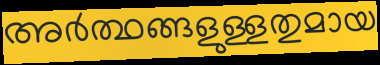
അർത്ഥങ്ങളുള്ളതുമായ